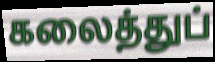
கலைத்துப்